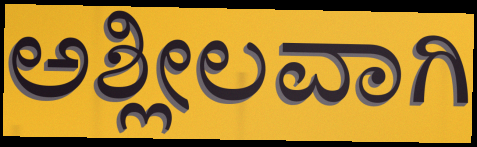
ಅಶ್ಲೀಲವಾಗಿ